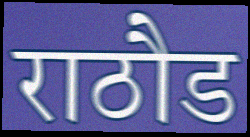
राठौड